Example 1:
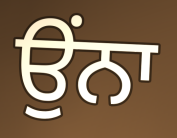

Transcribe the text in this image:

ਉੰਨਾ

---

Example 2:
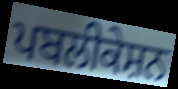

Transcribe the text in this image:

ਪਬਲੀਕੇਸ਼ਨ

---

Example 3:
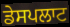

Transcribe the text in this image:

ਡੇਸਪਲਾਟ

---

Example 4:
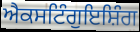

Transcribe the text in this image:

ਐਕਸਟਿੰਗੁਇਸ਼ਿੰਗ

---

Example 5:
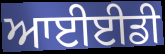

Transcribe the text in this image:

ਆਈਈਡੀ